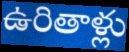
ఉరితాళ్లు